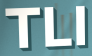
TLI